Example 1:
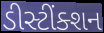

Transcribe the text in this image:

ડીસ્ટીંક્શન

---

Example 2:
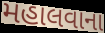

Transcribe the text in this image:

મહાલવાના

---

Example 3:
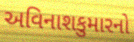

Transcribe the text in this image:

અવિનાશકુમારનો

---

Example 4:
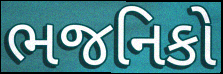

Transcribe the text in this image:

ભજનિકો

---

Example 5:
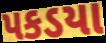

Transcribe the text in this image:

પકડયા